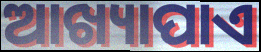
ଆଖ୍ୟାପାଏ